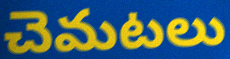
చెమటలు